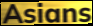
Asians